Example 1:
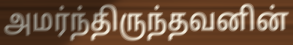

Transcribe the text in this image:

அமர்ந்திருந்தவனின்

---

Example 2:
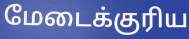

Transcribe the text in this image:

மேடைக்குரிய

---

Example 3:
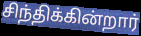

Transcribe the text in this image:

சிந்திக்கின்றார்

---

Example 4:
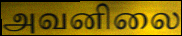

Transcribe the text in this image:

அவனிலை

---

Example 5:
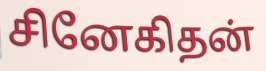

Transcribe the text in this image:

சினேகிதன்